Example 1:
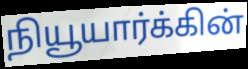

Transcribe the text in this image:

நியூயார்க்கின்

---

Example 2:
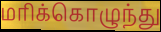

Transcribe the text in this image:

மரிக்கொழுந்து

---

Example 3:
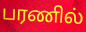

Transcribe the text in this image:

பரணில்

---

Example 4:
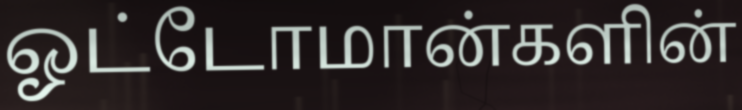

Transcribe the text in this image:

ஓட்டோமான்களின்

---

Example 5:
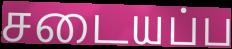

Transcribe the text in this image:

சடையப்ப